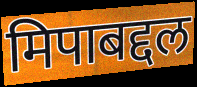
मिपाबद्दल